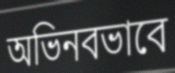
অভিনবভাবে